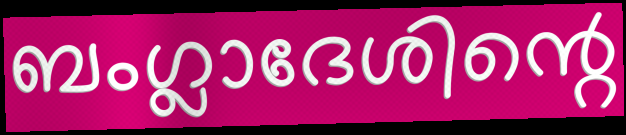
ബംഗ്ലാദേശിന്റെ